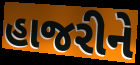
હાજરીને